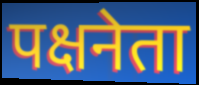
पक्षनेता